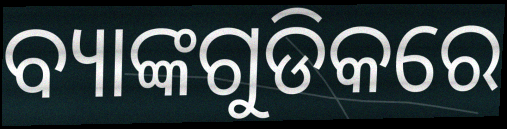
ବ୍ୟାଙ୍କଗୁଡିକରେ